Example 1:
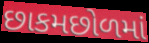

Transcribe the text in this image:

છાકમછોળમાં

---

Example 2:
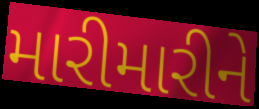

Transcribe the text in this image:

મારીમારીને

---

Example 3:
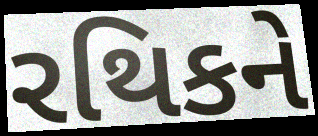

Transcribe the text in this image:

રથિકને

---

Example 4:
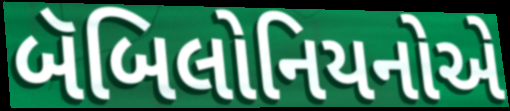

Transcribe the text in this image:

બૅબિલોનિયનોએ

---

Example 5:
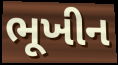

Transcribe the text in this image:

ભૂખીન